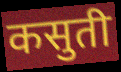
कसुती